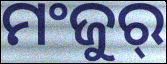
ମଂଜୁର୍